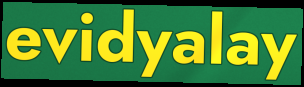
evidyalay